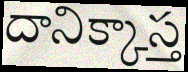
దానిక్కాస్త